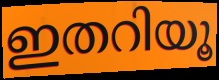
ഇതറിയൂ